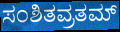
ಸಂಶಿತವ್ರತಮ್